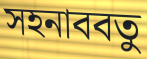
সহনাববতু